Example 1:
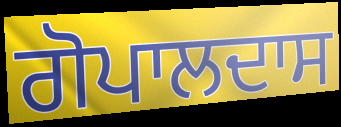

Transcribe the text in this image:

ਗੋਪਾਲਦਾਸ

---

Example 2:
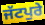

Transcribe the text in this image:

ਜੱਟਪੁਰੇ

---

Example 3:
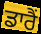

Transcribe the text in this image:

ਡਾਰੈਂ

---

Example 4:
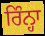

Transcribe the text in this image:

ਰਿੰਨ੍ਹਾ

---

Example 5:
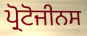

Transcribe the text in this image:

ਪ੍ਰੋਟੋਜੀਨਸ